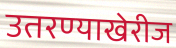
उतरण्याखेरीज